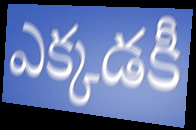
ఎక్కడకీ